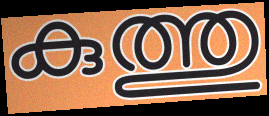
കുത്തു